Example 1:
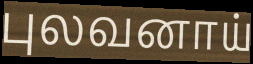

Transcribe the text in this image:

புலவனாய்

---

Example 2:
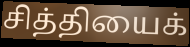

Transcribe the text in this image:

சித்தியைக்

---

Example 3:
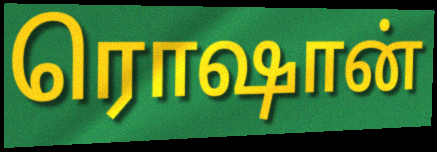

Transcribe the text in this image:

ரொஷான்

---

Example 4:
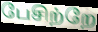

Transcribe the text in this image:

பேசிற்றே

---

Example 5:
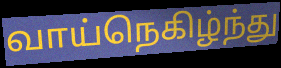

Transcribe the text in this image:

வாய்நெகிழ்ந்து